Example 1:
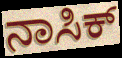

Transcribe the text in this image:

ನಾಸಿಕ್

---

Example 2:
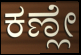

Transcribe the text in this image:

ಕಣ್ಲೇ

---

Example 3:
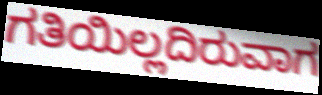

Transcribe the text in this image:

ಗತಿಯಿಲ್ಲದಿರುವಾಗ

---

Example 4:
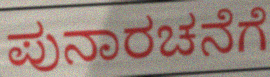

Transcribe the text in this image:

ಪುನಾರಚನೆಗೆ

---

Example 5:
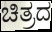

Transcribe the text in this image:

ಚಿತ್ರದ